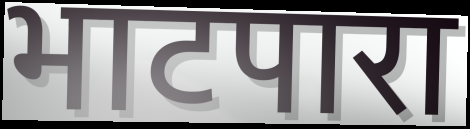
भाटपारा